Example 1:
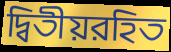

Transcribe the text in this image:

দ্বিতীয়রহিত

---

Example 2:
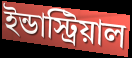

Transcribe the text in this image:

ইন্ডাস্ট্রিয়াল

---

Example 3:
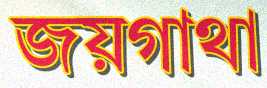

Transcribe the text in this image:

জয়গাথা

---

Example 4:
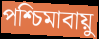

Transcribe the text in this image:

পশ্চিমাবায়ু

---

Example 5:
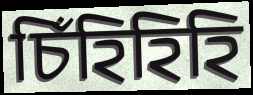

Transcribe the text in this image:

চিঁহিহিহি